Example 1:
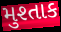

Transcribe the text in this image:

મુશ્તાક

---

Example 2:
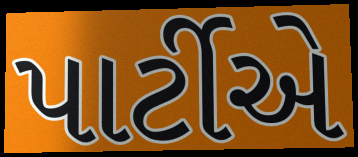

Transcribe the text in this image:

પાર્ટીએ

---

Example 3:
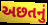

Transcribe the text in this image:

અછતનું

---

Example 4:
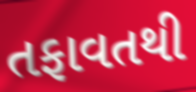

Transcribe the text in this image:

તફાવતથી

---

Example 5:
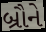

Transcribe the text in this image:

બ્રૌને